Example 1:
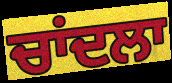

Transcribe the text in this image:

ਚਾਂਦਲਾ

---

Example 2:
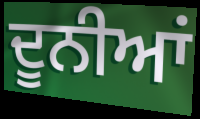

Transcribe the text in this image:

ਦੂਨੀਆਂ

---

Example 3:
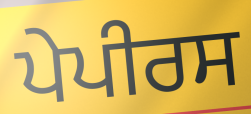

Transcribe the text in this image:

ਪੇਪੀਰਸ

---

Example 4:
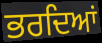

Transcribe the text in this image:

ਭਰਦਿਆਂ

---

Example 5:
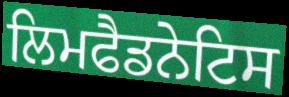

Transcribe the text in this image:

ਲਿਮਫੈਡਨੇਟਿਸ